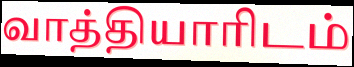
வாத்தியாரிடம்